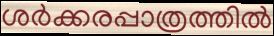
ശർക്കരപ്പാത്രത്തിൽ